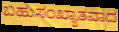
ಬಹುಸಂಖ್ಯಾತವಾದ